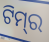
ଟିମ୍‌ର